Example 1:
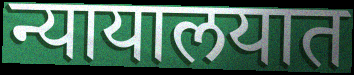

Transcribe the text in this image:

न्यायालयात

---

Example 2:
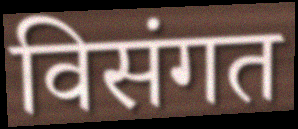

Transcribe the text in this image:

विसंगत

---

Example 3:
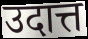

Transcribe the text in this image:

उदात्त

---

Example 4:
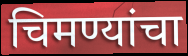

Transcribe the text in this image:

चिमण्यांचा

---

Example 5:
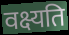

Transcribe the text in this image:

वक्ष्यति